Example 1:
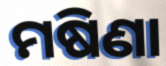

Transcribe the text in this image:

ମଷିଣା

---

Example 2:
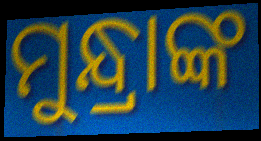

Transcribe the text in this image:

ମୁନ୍ଧ୍ରାଙ୍କ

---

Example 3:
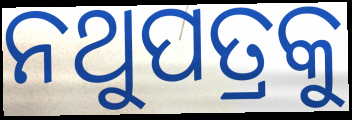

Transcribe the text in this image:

ନଥୁପତ୍ରକୁ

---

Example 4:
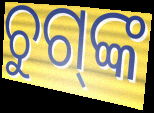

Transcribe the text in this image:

ଚୁଗ୍‌ଙ୍କ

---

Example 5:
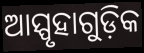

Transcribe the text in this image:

ଆସ୍ପୃହାଗୁଡ଼ିକ